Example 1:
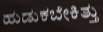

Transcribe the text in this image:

ಹುಡುಕಬೇಕಿತ್ತು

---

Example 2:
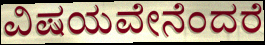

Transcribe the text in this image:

ವಿಷಯವೇನೆಂದರೆ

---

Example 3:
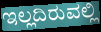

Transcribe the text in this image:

ಇಲ್ಲದಿರುವಲ್ಲಿ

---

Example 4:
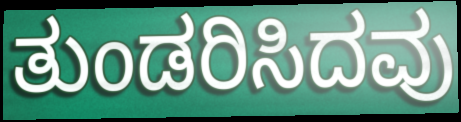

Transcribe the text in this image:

ತುಂಡರಿಸಿದವು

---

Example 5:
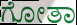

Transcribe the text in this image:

ಗೋತಾ